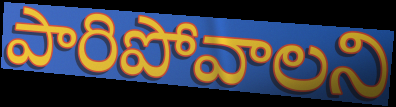
పారిపోవాలని